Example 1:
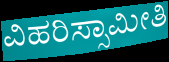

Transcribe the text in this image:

ವಿಹರಿಸ್ಸಾಮೀತಿ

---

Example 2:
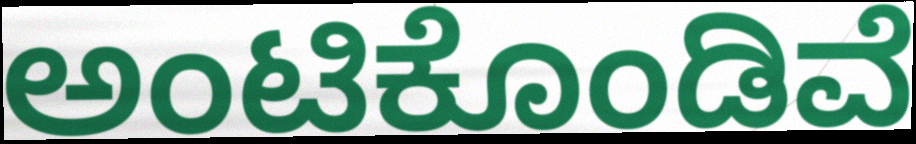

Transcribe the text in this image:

ಅಂಟಿಕೊಂಡಿವೆ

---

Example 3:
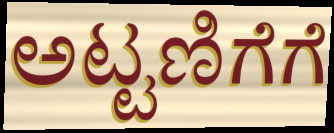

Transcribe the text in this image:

ಅಟ್ಟಣಿಗೆಗೆ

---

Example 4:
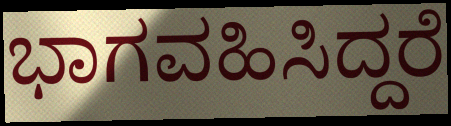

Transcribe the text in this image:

ಭಾಗವಹಿಸಿದ್ದರೆ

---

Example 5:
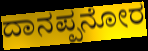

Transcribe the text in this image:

ದಾನಪ್ಪನೋರ